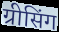
ग्रीसिंग